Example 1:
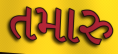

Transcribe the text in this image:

તમારુ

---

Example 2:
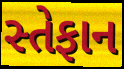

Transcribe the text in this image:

સ્તેફાન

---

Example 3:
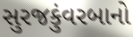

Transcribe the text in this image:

સુરજકુંવરબાનો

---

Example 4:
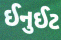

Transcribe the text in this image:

ઈનુઈટ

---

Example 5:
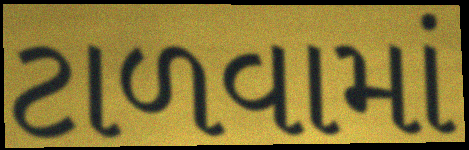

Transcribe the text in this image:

ટાળવામાં